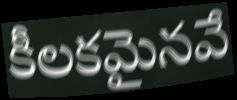
కీలకమైనవే